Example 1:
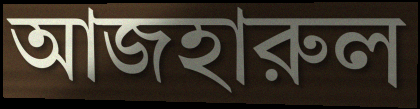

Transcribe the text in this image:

আজহারুল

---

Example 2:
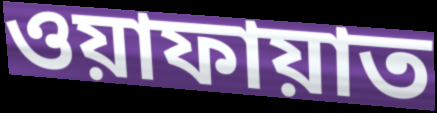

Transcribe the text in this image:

ওয়াফায়াত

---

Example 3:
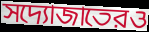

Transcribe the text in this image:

সদ্যোজাতেরও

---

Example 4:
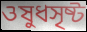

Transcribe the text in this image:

ওষুধসৃষ্ট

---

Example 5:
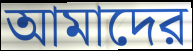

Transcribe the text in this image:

আমাদের